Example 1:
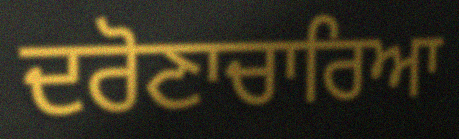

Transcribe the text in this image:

ਦਰੋਣਾਚਾਰਿਆ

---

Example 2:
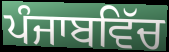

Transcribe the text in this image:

ਪੰਜਾਬਵਿੱਚ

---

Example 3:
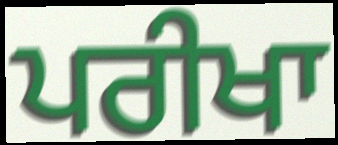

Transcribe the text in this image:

ਪਰੀਖਾ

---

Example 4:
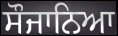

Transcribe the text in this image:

ਸੌਜਾਨਿਆ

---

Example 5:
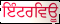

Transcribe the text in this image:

ਇੰਟਰਵਿਊ